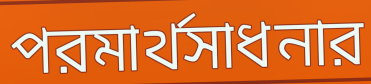
পরমার্থসাধনার